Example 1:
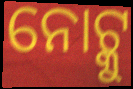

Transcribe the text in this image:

ନୋଟ୍କୁ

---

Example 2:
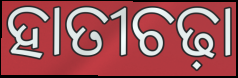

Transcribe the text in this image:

ହାତୀଚଢ଼ା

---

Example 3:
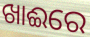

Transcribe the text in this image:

ଖାଈରେ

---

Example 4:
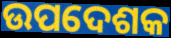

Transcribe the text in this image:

ଉପଦେଶକ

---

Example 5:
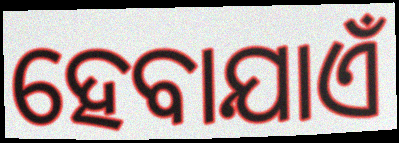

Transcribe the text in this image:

ହେବାଯାଏଁ